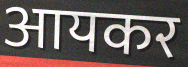
आयकर